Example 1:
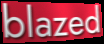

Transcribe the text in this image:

blazed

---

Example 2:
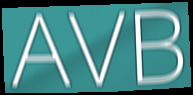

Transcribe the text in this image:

AVB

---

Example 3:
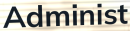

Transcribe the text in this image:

Administ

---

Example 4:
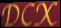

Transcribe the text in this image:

DCX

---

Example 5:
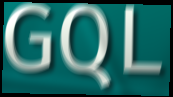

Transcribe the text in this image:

GQL